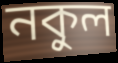
নকুল